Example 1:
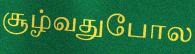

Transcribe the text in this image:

சூழ்வதுபோல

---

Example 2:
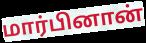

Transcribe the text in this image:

மார்பினான்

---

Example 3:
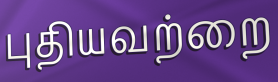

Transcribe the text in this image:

புதியவற்றை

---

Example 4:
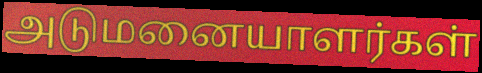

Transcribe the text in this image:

அடுமனையாளர்கள்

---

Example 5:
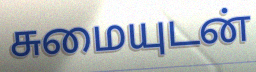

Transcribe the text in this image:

சுமையுடன்